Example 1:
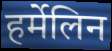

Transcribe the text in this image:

हर्मेलिन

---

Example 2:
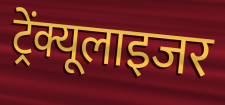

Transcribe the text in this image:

ट्रेंक्यूलाइजर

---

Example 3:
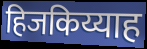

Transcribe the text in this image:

हिजकिय्याह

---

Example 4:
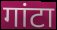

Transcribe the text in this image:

गांटा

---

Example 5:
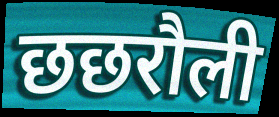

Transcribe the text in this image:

छछरौली